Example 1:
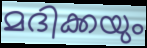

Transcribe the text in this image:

മദിക്കയും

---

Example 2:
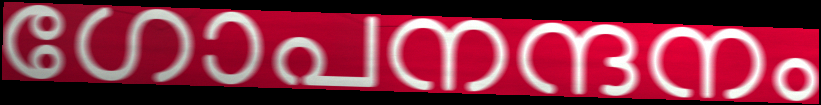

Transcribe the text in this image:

ഗോപനന്ദനം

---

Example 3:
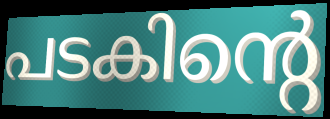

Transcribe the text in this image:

പടകിന്റെ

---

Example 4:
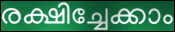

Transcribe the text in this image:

രക്ഷിച്ചേക്കാം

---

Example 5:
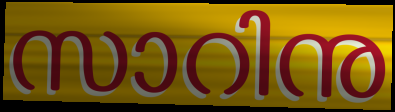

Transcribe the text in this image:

സാറിനു